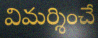
విమర్శించే